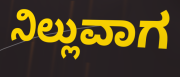
ನಿಲ್ಲುವಾಗ